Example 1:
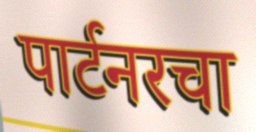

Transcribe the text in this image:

पार्टनरचा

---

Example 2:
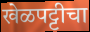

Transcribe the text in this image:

खेळपट्टीचा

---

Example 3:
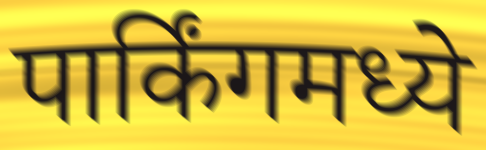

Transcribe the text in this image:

पार्किंगमध्ये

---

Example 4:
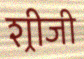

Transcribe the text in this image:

श्रीजी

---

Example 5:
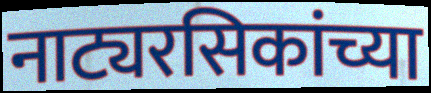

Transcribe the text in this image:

नाट्यरसिकांच्या